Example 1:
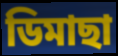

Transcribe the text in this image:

ডিমাছা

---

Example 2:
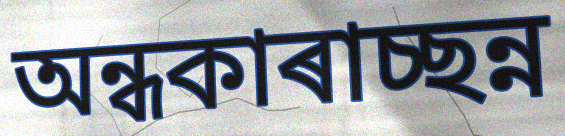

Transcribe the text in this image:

অন্ধকাৰাচ্ছন্ন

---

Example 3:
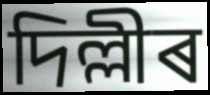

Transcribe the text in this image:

দিল্লীৰ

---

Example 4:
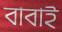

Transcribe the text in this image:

বাবাই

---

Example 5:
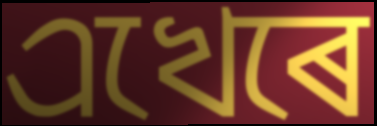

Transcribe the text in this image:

এখেৰে